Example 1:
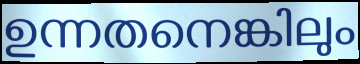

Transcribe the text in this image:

ഉന്നതനെങ്കിലും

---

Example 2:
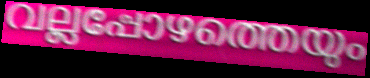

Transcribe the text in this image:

വല്ലപ്പോഴത്തെയും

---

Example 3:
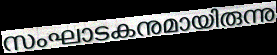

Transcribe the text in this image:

സംഘാടകനുമായിരുന്നു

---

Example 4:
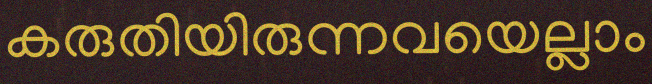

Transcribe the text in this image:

കരുതിയിരുന്നവയെല്ലാം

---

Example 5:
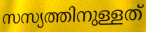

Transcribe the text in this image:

സസ്യത്തിനുള്ളത്